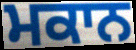
ਮਕਾਨ